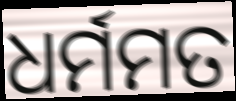
ଧର୍ମମତ